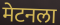
मेटनला